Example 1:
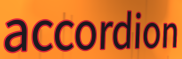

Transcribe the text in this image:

accordion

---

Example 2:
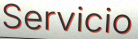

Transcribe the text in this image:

Servicio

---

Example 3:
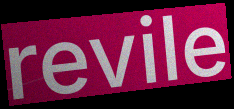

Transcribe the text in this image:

revile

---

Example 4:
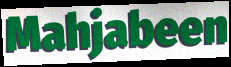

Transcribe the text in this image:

Mahjabeen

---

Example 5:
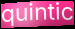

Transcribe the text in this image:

quintic